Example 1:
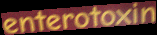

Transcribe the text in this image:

enterotoxin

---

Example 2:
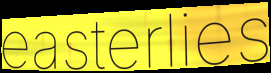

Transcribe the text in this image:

easterlies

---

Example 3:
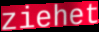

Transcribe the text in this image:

ziehet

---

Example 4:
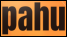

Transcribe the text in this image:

pahu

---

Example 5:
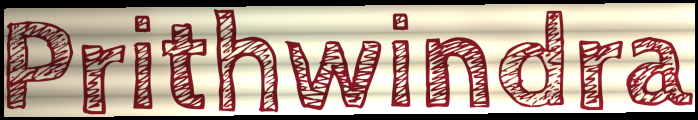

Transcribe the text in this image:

Prithwindra